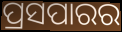
ପ୍ରସପାରର